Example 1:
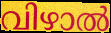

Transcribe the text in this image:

വിഴാൽ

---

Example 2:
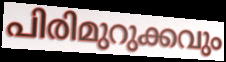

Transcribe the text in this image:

പിരിമുറുക്കവും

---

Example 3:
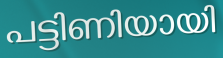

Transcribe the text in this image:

പട്ടിണിയായി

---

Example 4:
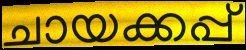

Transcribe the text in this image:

ചായക്കപ്പ്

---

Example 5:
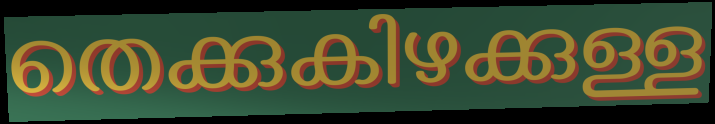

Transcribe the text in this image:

തെക്കുകിഴക്കുള്ള